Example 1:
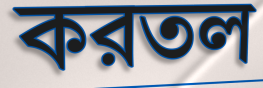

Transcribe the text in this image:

করতল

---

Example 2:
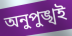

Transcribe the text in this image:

অনুপুঙ্খই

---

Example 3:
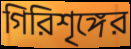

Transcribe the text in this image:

গিরিশৃঙ্গের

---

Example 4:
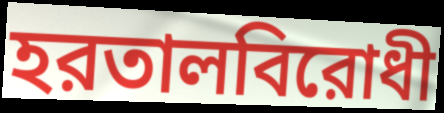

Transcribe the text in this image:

হরতালবিরোধী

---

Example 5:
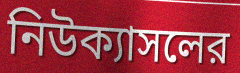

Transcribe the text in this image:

নিউক্যাসলের